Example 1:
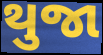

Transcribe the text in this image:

થુજા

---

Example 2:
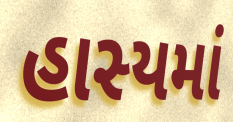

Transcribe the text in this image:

હાસ્યમાં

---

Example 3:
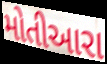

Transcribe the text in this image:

મોતીઆરા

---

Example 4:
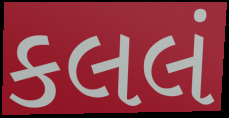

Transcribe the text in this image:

કલલં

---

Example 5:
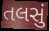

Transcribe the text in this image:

તલસું